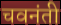
चवनंती